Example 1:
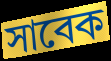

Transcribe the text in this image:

সাবেক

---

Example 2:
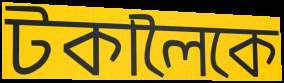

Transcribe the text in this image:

টকালৈকে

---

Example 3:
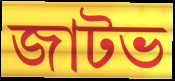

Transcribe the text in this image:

জাটভ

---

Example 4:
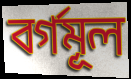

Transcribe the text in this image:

বৰ্গমূল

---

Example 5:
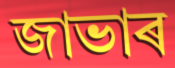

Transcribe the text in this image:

জাভাৰ